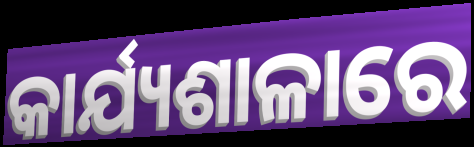
କାର୍ଯ୍ୟଶାଳାରେ